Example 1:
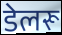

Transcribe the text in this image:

डेलरू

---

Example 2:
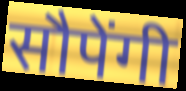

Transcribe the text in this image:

सौपेंगी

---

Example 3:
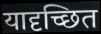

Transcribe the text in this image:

यादृच्छित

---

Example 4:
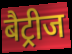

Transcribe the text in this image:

बैट्रीज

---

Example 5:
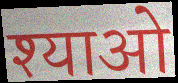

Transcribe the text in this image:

श्याओ